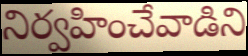
నిర్వహించేవాడిని